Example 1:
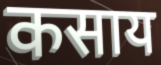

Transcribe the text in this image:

कसाय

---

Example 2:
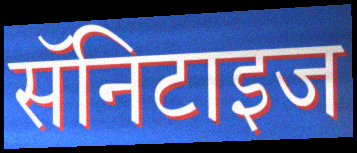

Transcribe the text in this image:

सॅनिटाइज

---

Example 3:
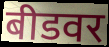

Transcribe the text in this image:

बीडवर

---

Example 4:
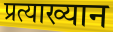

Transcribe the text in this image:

प्रत्याख्यान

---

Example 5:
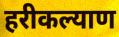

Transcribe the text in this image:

हरीकल्याण